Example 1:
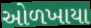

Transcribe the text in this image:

ઓળખાયા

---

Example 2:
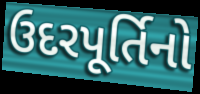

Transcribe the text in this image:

ઉદરપૂર્તિનો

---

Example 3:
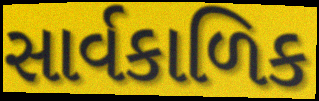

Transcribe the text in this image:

સાર્વકાળિક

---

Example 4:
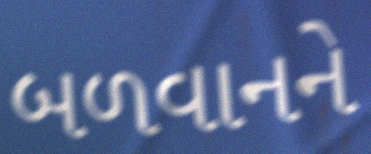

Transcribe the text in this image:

બળવાનને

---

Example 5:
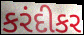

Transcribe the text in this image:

કરંદીકર